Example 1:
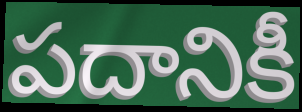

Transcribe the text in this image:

పదానికీ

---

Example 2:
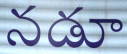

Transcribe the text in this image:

నడూ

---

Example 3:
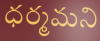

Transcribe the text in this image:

ధర్మమని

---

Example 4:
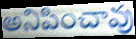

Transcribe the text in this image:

అనిపించావు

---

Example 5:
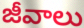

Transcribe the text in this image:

జీవాలు